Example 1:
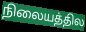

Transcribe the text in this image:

நிலையத்தில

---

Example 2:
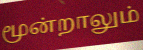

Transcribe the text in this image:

மூன்றாலும்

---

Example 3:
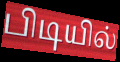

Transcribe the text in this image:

பிடியில்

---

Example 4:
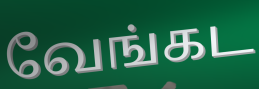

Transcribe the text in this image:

வேங்கட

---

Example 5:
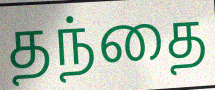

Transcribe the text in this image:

தந்தை